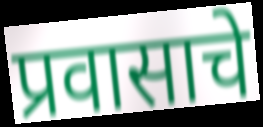
प्रवासाचे